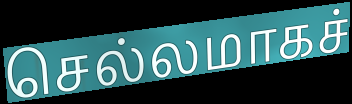
செல்லமாகச்